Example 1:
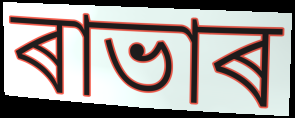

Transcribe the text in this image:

ৰাভাৰ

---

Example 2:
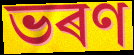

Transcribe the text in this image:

ভৰণ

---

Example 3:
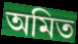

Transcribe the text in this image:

অমিত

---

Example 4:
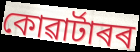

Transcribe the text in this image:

কোৱাৰ্টাৰৰ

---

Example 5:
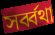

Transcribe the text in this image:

সৰ্ব্বথা